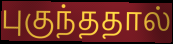
புகுந்ததால்